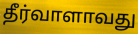
தீர்வாளாவது